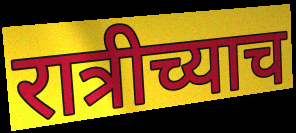
रात्रीच्याच